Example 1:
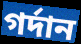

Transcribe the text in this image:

গর্দান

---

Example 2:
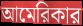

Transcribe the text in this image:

আমেরিকার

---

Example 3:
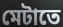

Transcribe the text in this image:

মেটাতে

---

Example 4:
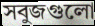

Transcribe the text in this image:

সবুজগুলো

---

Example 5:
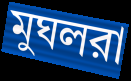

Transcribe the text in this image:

মুঘলরা